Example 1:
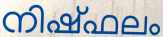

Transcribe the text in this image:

നിഷ്ഫലം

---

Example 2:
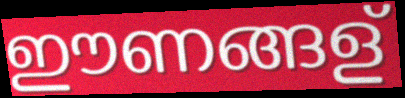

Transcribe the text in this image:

ഈണങ്ങള്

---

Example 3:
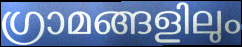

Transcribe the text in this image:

ഗ്രാമങ്ങളിലും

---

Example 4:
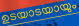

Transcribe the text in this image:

ഉടയാടയായും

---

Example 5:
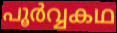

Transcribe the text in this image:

പൂർവ്വകഥ